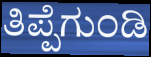
ತಿಪ್ಪೆಗುಂಡಿ